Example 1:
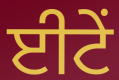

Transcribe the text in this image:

ਈਟੇਂ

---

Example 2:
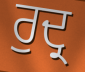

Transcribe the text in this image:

ਰੁਦ੍ਰ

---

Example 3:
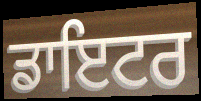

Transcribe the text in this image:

ਡਾਇਟਰ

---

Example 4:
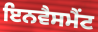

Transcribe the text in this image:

ਇਨਵੈਸਮੈਂਟ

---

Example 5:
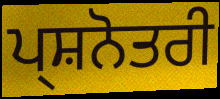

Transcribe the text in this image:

ਪ੍ਸ਼ਨੋਤਰੀ